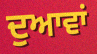
ਦੁਆਵਾਂ